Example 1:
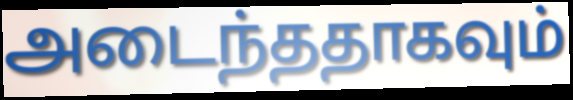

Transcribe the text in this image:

அடைந்ததாகவும்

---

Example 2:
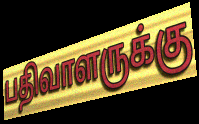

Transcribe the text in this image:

பதிவாளருக்கு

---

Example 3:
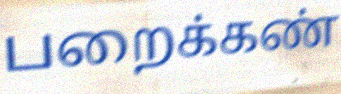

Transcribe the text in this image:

பறைக்கண்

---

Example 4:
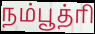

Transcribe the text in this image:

நம்பூத்ரி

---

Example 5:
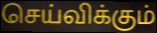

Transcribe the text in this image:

செய்விக்கும்